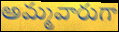
అమ్మవారుగా